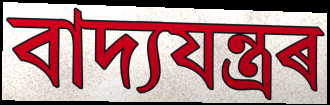
বাদ্যযন্ত্ৰৰ